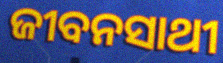
ଜୀବନସାଥୀ